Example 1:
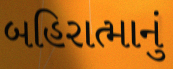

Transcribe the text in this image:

બહિરાત્માનું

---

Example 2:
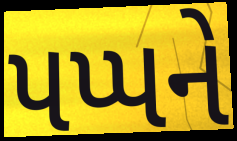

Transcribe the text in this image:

પપ્પને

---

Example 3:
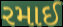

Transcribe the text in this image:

રમાઈ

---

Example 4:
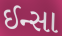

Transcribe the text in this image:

ઈન્સા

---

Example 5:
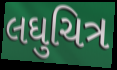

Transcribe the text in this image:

લઘુચિત્ર